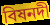
বিষনদী